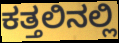
ಕತ್ತಲಿನಲ್ಲಿ